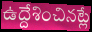
ఉద్దేశించినట్లే